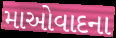
માઓવાદના